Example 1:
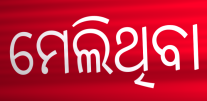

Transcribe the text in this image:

ମେଲିଥିବା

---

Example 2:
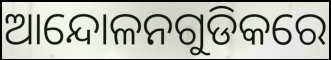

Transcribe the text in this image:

ଆନ୍ଦୋଳନଗୁଡିକରେ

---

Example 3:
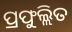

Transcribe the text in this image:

ପ୍ରଫୁଲ୍ଲିତ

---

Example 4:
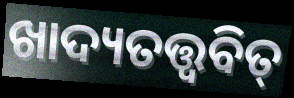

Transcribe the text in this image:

ଖାଦ୍ୟତତ୍ତ୍ୱବିତ୍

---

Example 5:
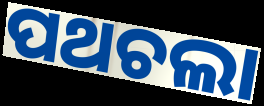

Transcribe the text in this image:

ପଥଚଲା